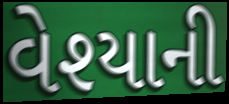
વેશ્યાની